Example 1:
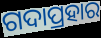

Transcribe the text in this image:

ଗଦାପ୍ରହାର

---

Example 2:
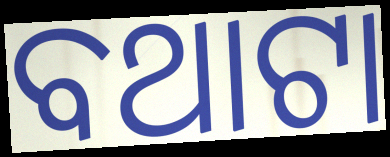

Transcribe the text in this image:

ବଥାଟା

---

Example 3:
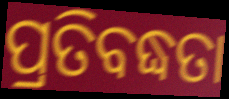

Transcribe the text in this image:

ପ୍ରତିବଦ୍ଧତା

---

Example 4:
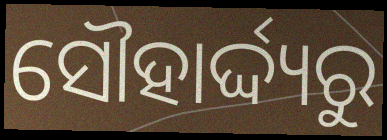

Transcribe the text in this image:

ସୌହାର୍ଦ୍ଦ୍ୟରୁ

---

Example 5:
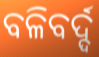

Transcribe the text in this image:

ବଳିବର୍ଦ୍ଦ